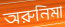
অরুনিমা